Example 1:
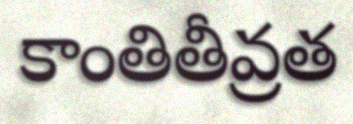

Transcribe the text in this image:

కాంతితీవ్రత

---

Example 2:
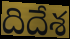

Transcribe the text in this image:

దిదేశ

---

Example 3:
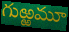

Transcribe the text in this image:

గుఱ్ఱమూ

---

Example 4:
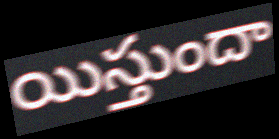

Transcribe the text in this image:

యిస్తుందా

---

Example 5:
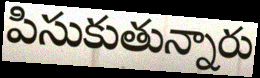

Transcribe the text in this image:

పిసుకుతున్నారు